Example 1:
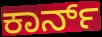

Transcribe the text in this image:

ಕಾರ್ನ್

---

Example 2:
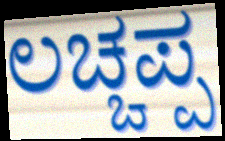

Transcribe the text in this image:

ಲಚ್ಚಪ್ಪ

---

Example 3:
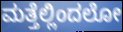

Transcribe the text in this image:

ಮತ್ತೆಲ್ಲಿಂದಲೋ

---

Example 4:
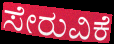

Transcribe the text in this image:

ಸೇರುವಿಕೆ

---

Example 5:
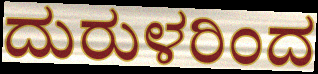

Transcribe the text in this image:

ದುರುಳರಿಂದ